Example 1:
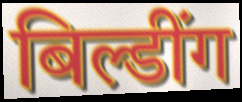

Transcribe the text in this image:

बिल्डींग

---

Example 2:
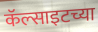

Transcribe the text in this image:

कॅल्साइटच्या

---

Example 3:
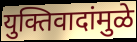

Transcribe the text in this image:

युक्तिवादांमुळे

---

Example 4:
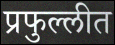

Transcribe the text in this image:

प्रफुल्लीत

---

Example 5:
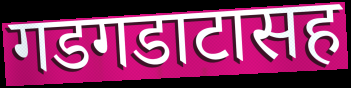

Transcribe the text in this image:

गडगडाटासह